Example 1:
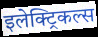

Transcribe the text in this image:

इलेक्ट्रिकल्स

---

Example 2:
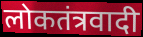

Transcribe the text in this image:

लोकतंत्रवादी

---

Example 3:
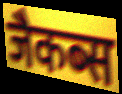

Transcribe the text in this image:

जैकब्स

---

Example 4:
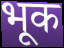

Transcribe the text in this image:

भूक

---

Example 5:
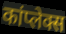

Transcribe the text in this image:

कांप्लेक्स